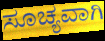
ಸೂಚ್ಯವಾಗಿ